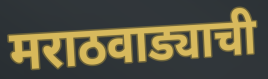
मराठवाड्याची